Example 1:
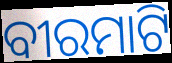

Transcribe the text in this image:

ବୀରମାଟି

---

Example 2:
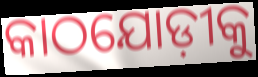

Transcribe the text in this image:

କାଠଯୋଡ଼ୀକୁ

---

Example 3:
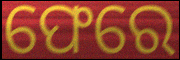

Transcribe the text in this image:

ଫେରେ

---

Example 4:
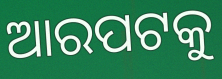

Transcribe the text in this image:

ଆରପଟକୁ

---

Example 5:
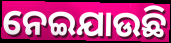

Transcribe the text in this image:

ନେଇଯାଉଛି